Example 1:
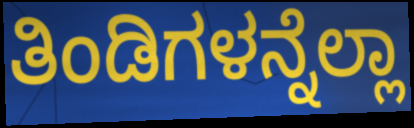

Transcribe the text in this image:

ತಿಂಡಿಗಳನ್ನೆಲ್ಲಾ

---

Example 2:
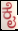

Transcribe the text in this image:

ಕೈ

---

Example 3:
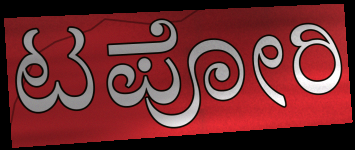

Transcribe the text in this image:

ಟಪೋರಿ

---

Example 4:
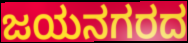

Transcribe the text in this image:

ಜಯನಗರದ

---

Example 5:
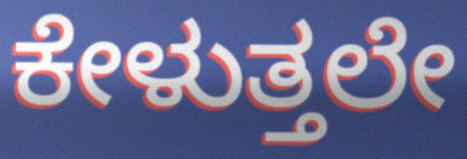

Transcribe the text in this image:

ಕೇಳುತ್ತಲೇ